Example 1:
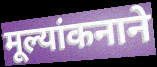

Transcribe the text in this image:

मूल्यांकनाने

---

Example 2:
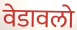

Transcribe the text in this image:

वेडावलो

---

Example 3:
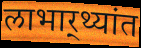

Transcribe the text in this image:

लाभार्थ्यांत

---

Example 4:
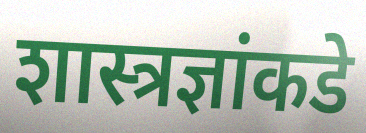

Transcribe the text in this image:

शास्त्रज्ञांकडे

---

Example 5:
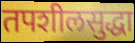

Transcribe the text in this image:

तपशीलसुद्धा